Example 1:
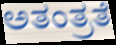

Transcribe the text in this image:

ಅತಂತ್ರತೆ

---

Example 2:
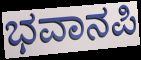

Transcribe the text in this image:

ಭವಾನಪಿ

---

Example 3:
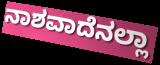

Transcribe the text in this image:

ನಾಶವಾದೆನಲ್ಲಾ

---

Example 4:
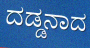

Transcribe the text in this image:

ದಡ್ಡನಾದ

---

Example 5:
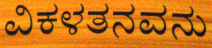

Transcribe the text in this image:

ವಿಕಳತನವನು